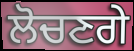
ਲੋਚਣਗੇ